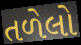
તળેલો